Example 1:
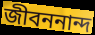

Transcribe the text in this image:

জীবননান্দ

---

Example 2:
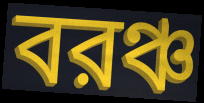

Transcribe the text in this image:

বরঞ্চ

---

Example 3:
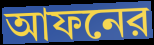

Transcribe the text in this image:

আফনের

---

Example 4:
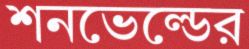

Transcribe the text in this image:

শনভেল্ডের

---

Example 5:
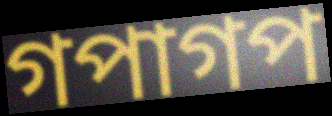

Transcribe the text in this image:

গপাগপ